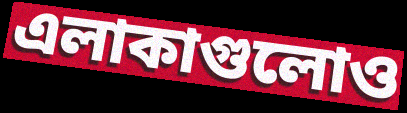
এলাকাগুলোও